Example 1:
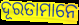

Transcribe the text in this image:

ଦୂରତାମାନେ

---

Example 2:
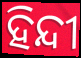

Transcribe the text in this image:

ହିନ୍ଦୀ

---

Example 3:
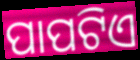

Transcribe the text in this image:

ପାପଟିଏ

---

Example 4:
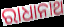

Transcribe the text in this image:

ରାଧାନାଥ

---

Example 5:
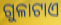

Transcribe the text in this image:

ଗୁଳାଟାଏ